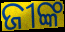
ଜୀଙ୍କ